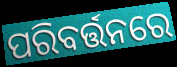
ପରିବର୍ତ୍ତନରେ